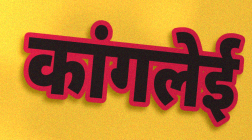
कांगलेई